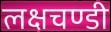
लक्षचण्डी